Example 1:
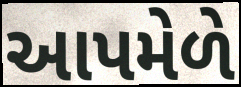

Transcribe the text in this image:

આપમેળે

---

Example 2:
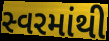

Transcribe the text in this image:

સ્વરમાંથી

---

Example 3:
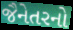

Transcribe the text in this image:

જૈનેતરનો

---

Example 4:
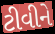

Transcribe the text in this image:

ટીવીને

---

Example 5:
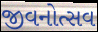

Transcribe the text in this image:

જીવનોત્સવ